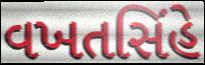
વખતસિંહે